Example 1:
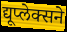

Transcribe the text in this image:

द्यूप्लेक्सने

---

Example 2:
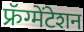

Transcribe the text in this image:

फ्रॅग्मेंटेशन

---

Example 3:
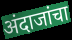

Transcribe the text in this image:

अंदाजांचा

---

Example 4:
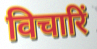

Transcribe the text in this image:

विचारिं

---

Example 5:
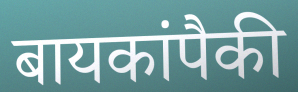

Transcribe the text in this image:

बायकांपैकी